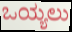
ಒಯ್ಯಲು